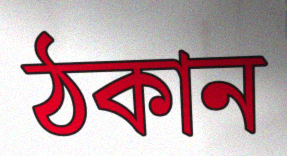
ঠকান